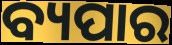
ବ୍ୟପାର